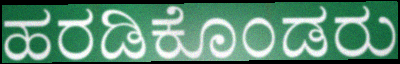
ಹರಡಿಕೊಂಡರು